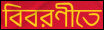
বিবরণীতে